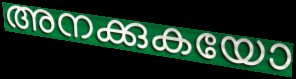
അനക്കുകയോ